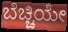
ಬೆಚ್ಚಿಯೇ